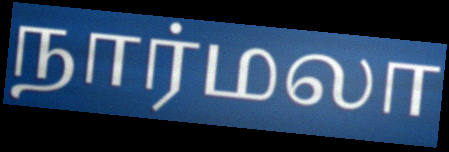
நார்மலா